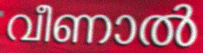
വീണാൽ